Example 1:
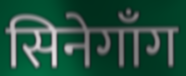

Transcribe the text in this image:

सिनेगाँग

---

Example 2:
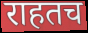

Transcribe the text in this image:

राहतच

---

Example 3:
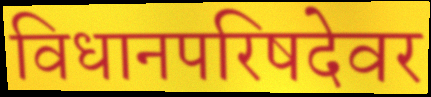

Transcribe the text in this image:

विधानपरिषदेवर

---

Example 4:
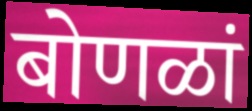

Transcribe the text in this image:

बोणळां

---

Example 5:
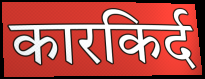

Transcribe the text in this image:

कारकिर्द